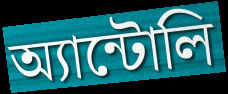
অ্যান্টোলি